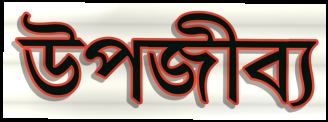
উপজীব্য